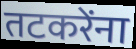
तटकरेंना